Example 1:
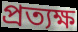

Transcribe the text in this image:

প্রত্যক্ষ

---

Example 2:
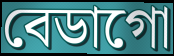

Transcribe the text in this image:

বেডাগো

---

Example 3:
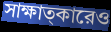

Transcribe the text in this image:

সাক্ষাত্কারেও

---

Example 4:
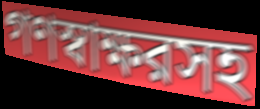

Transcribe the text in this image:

গণস্বাক্ষরসহ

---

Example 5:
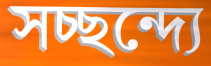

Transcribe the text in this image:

সচ্ছন্দ্যে